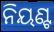
ନିୟଣ୍ଟ